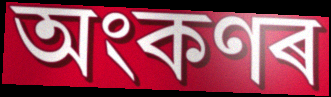
অংকণৰ